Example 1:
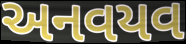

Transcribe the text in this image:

અનવયવ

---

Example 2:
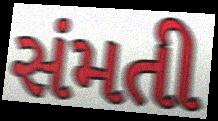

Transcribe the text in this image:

સંમતી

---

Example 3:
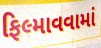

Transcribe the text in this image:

ફિલ્માવવામાં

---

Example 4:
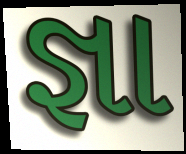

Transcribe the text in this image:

જ્ઞા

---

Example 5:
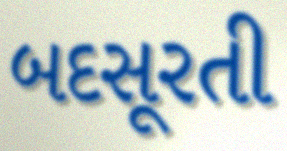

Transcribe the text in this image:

બદસૂરતી